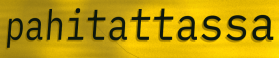
pahitattassa